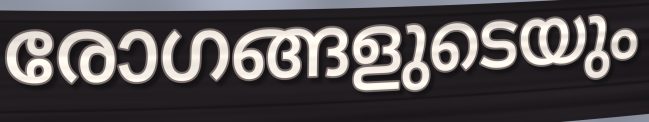
രോഗങ്ങളുടെയും